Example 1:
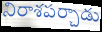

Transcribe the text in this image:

నిరాశపర్చాడు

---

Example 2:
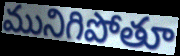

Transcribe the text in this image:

మునిగిపోతూ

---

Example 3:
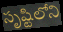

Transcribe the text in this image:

సృష్టిలోని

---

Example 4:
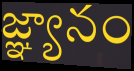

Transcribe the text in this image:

జ్ఞ్యానం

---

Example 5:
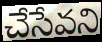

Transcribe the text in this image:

చేసేవని